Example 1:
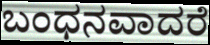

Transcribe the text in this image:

ಬಂಧನವಾದರೆ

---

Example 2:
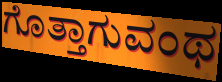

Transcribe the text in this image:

ಗೊತ್ತಾಗುವಂಥ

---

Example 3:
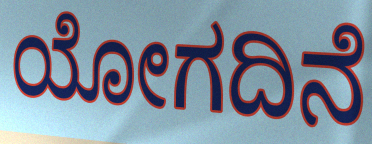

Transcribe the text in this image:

ಯೋಗದಿನೆ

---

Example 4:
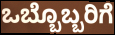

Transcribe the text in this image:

ಒಬ್ಬೊಬ್ಬರಿಗೆ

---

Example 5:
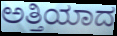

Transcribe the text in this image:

ಅತ್ತಿಯಾದ